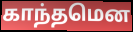
காந்தமென